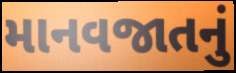
માનવજાતનું